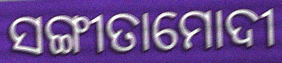
ସଙ୍ଗୀତାମୋଦୀ